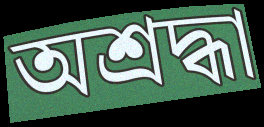
অশ্রদ্ধা